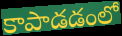
కాపాడడంలో